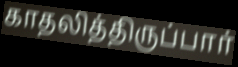
காதலித்திருப்பார்